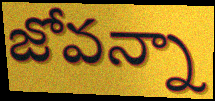
జోవన్నా